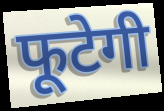
फूटेगी